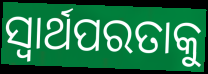
ସ୍ଵାର୍ଥପରତାକୁ